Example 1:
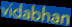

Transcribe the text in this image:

vidabhan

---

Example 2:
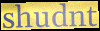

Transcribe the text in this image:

shudnt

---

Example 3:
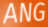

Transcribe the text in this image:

ANG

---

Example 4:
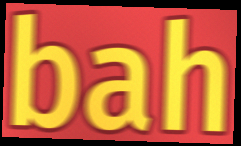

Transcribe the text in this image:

bah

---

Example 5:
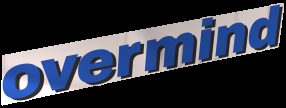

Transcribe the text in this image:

overmind